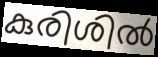
കുരിശിൽ